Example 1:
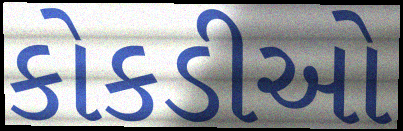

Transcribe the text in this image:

કોકડીઓ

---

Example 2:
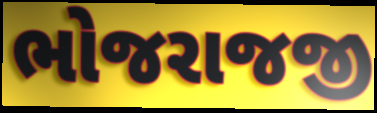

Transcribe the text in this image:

ભોજરાજજી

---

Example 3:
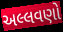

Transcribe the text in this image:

અલ્લવણો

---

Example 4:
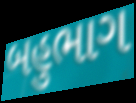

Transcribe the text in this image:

બહુભાગ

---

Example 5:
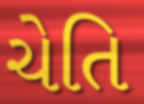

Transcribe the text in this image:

ચેતિ